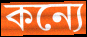
কন্যে